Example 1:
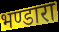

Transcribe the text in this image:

भण्डारा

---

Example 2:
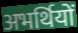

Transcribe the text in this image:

अभर्थियों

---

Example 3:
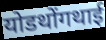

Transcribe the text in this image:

योडथोंगथाई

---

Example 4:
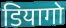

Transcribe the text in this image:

डियागो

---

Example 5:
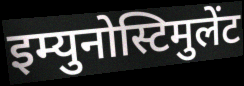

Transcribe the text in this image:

इम्युनोस्टिमुलेंट